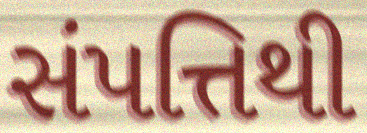
સંપત્તિથી